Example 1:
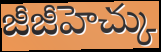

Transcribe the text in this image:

జీజీహెచ్కు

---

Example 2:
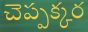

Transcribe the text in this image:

చెప్పక్కర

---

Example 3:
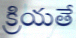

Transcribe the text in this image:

క్రియతే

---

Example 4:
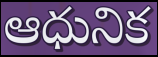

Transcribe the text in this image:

ఆధునిక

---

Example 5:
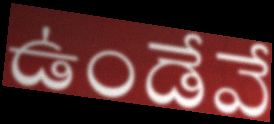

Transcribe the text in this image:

ఉండేవే